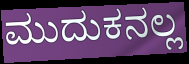
ಮುದುಕನಲ್ಲ